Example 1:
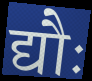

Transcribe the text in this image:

द्यौः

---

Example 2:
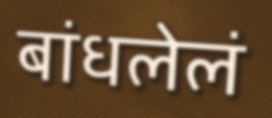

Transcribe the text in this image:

बांधलेलं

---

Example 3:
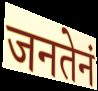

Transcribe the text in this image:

जनतेनं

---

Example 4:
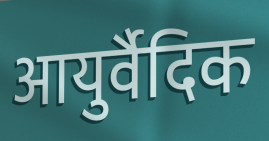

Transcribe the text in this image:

आयुर्वैदिक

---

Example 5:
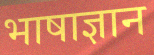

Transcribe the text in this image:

भाषाज्ञान